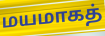
மயமாகத்